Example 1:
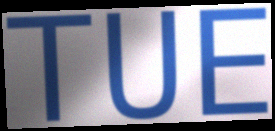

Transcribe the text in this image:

TUE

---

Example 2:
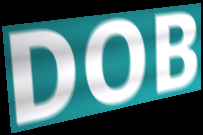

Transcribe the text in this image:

DOB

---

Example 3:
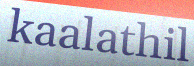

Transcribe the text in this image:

kaalathil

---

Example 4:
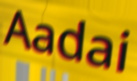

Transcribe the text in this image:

Aadai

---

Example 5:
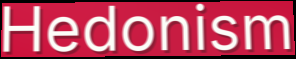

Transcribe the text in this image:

Hedonism